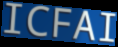
ICFAI